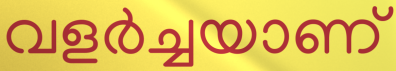
വളർച്ചയാണ്